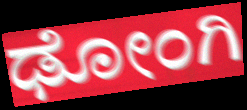
ಢೋಂಗಿ